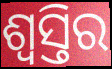
ଶ୍ୱସ୍ତିର